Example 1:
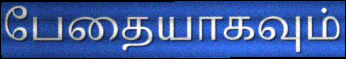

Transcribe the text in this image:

பேதையாகவும்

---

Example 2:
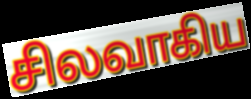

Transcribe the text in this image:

சிலவாகிய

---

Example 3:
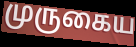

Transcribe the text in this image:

முருகைய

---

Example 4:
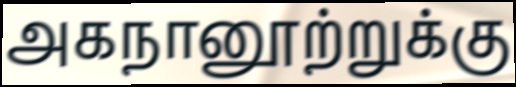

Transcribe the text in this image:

அகநானூற்றுக்கு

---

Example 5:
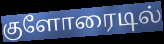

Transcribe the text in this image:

குளோரைடில்